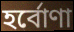
হর্বোণা